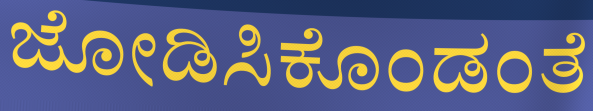
ಜೋಡಿಸಿಕೊಂಡಂತೆ